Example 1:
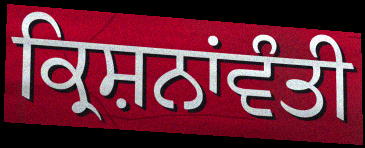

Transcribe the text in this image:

ਕ੍ਰਿਸ਼ਨਾਂਵੰਤੀ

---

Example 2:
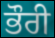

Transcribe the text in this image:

ਭੌਰੀ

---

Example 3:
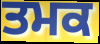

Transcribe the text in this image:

ਤਮਕ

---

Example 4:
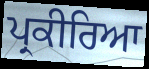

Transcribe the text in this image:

ਪ੍ਰਕੀਰਿਆ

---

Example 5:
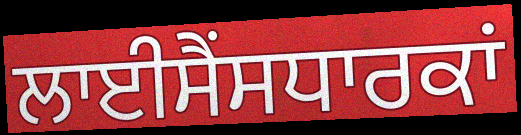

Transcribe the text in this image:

ਲਾਈਸੈਂਸਧਾਰਕਾਂ